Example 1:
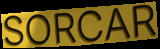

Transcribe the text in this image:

SORCAR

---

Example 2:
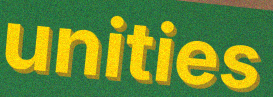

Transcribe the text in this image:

unities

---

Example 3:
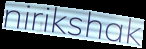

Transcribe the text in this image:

nirikshak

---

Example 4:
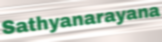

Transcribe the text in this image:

Sathyanarayana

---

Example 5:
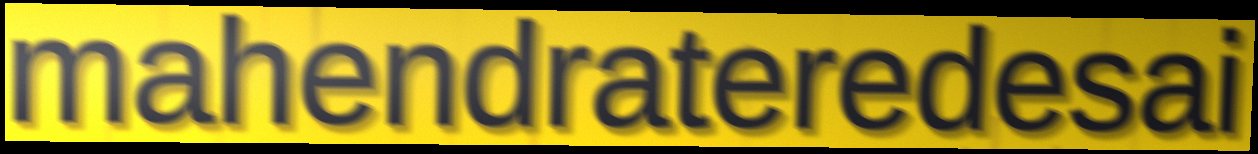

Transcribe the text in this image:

mahendrateredesai